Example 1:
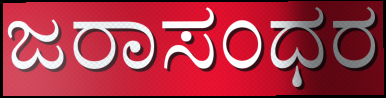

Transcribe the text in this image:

ಜರಾಸಂಧರ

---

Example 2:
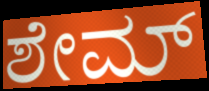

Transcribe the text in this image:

ಶೇಮ್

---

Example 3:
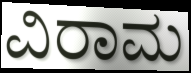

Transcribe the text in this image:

ವಿರಾಮ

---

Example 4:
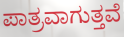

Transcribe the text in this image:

ಪಾತ್ರವಾಗುತ್ತವೆ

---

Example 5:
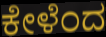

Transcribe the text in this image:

ಕೇಳೆಂದ